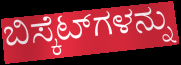
ಬಿಸ್ಕೆಟ್‌ಗಳನ್ನು